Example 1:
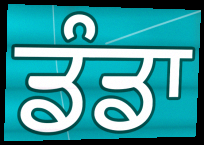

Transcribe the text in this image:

ਡੰਡਾ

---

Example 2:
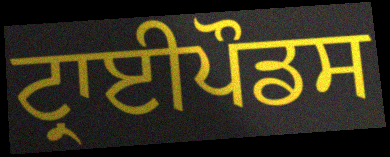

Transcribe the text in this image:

ਟ੍ਰਾਈਪੌਡਸ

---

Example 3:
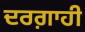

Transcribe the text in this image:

ਦਰਗ਼ਾਹੀ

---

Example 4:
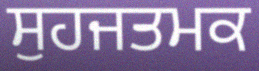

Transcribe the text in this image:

ਸੁਹਜਤਮਕ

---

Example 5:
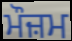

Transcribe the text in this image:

ਮੌਜ਼ਮ